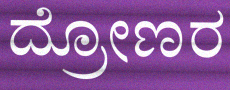
ದ್ರೋಣರ